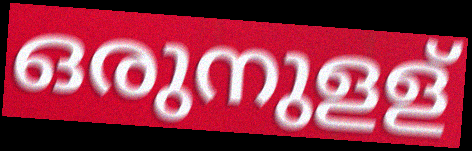
ഒരുനുളള്